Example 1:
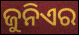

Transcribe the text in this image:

ଜୁନିଏର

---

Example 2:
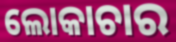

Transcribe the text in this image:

ଲୋକାଚାର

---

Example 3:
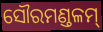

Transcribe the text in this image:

ସୌରମଣ୍ଡଳମ୍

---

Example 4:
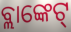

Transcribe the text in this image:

ବ୍ଲାଙ୍କେଟ୍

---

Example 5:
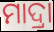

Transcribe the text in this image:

ମାଦ୍ରା